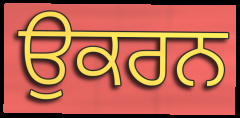
ਉਕਰਨ